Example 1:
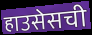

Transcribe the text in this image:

हाउसेसची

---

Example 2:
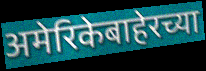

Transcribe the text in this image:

अमेरिकेबाहेरच्या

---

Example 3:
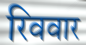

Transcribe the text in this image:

रिववार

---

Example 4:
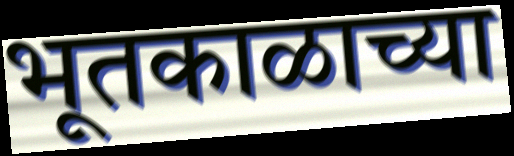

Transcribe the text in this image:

भूतकाळाच्या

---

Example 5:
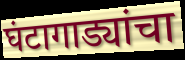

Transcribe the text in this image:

घंटागाड्यांचा